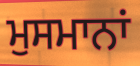
ਮੁਸਮਾਨਾਂ